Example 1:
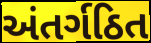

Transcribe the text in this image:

અંતર્ગઠિત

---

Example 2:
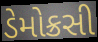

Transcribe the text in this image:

ડેમોક્રસી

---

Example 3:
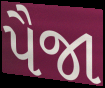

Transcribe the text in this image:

પૈજા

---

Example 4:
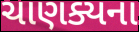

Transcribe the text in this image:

ચાણક્યના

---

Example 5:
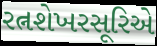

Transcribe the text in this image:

રત્નશેખરસૂરિએ